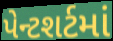
પેન્ટશર્ટમાં